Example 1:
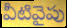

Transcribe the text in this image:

వీటివైపు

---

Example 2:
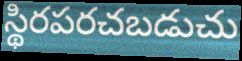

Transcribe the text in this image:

స్థిరపరచబడుచు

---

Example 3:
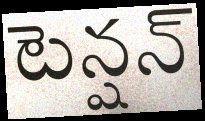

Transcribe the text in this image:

టెన్షన్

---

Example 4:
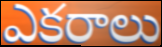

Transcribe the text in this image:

ఎకరాలు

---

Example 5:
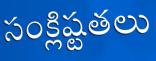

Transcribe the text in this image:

సంక్లిష్టతలు